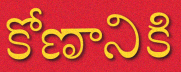
కోణానికి